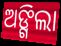
ଅଙ୍ଗିଲା